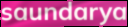
saundarya